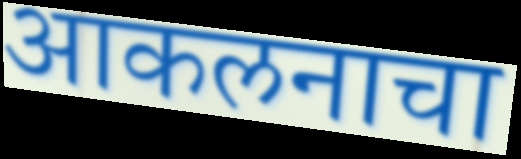
आकलनाचा